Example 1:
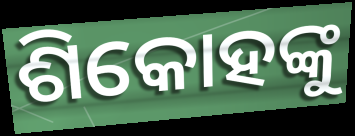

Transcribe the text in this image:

ଶିକୋହଙ୍କୁ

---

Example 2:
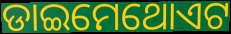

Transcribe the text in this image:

ଡାଇମେଥୋଏଟ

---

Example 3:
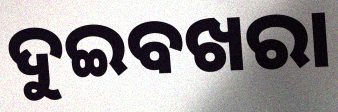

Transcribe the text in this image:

ଦୁଇବଖରା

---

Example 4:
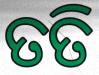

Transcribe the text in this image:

ତତି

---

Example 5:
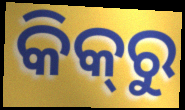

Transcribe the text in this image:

କିକ୍‍ରୁ